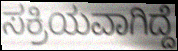
ಸಕ್ರಿಯವಾಗಿದ್ದೆ